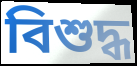
বিশুদ্ধ